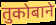
तुकोबाने